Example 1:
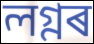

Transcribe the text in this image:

লগ্নৰ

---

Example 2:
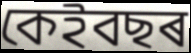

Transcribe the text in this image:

কেইবছৰ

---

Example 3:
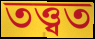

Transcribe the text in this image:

তত্ত্বত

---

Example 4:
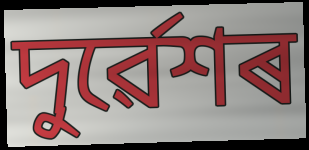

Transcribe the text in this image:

দুৰ্ৱেশৰ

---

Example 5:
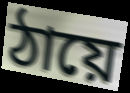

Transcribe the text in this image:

ঠায়ে